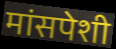
मांसपेशी